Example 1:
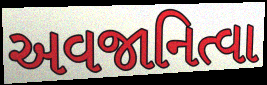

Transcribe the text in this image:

અવજાનિત્વા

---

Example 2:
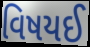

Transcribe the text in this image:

વિષયઈ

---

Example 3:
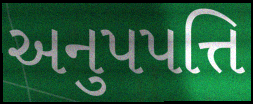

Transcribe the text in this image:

અનુપપત્તિ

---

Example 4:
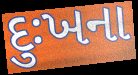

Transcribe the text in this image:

દુઃખના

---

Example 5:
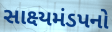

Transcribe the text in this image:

સાક્ષ્યમંડપનો